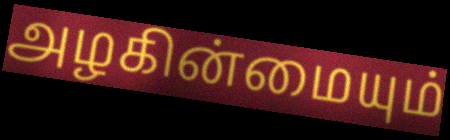
அழகின்மையும்